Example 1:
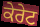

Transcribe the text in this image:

ਕੇਰੇਟ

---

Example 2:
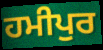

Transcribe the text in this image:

ਹਮੀਪੁਰ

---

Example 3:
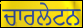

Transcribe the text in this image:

ਚਾਰਲੇਟਨ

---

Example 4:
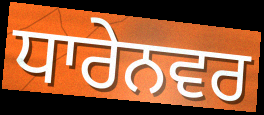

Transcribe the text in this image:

ਧਾਰੇਨਵਰ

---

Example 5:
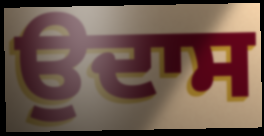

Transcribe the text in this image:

ਉਦਾਸ